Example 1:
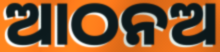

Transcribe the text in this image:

ଆଠନଅ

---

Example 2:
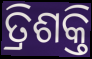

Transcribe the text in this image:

ତ୍ରିଶକ୍ତି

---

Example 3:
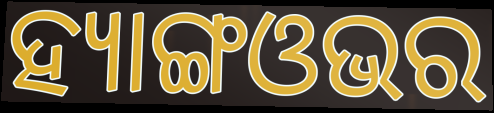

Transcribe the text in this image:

ହ୍ୟାଙ୍ଗଓଭର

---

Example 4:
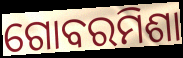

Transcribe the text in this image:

ଗୋବରମିଶା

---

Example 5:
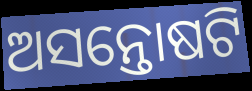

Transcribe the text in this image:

ଅସନ୍ତୋଷଟି